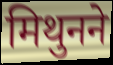
मिथुनने